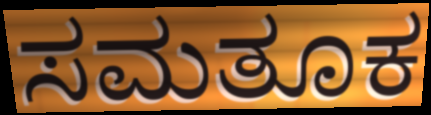
ಸಮತೂಕ